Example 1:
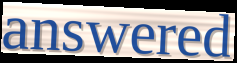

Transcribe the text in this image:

answered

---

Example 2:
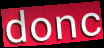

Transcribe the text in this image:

donc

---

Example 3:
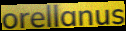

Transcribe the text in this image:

orellanus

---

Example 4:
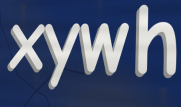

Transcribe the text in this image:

xywh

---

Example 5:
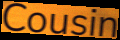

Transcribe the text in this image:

Cousin